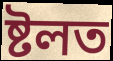
ষ্টলত